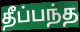
தீப்பந்த